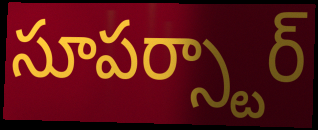
సూపర్స్టార్